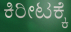
ಕಿರೀಟಕ್ಕೆ